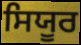
ਸਿਯੂਰ